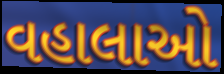
વહાલાઓ